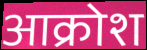
आक्रोश